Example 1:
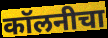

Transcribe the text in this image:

कॉलनीचा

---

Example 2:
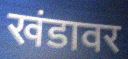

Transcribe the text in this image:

खंडावर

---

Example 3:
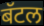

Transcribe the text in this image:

बॅटल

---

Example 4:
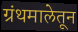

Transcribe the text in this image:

ग्रंथमालेतून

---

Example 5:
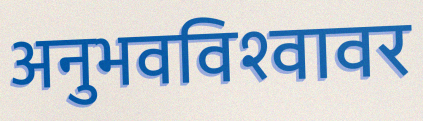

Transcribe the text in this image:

अनुभवविश्वावर